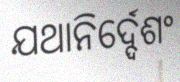
ଯଥାନିର୍ଦ୍ଦେଶଂ